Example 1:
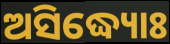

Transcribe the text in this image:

ଅସିଦ୍ଧ୍ୟୋଃ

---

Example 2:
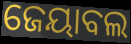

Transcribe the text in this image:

ଜେୟାବଲ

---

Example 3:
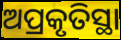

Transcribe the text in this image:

ଅପ୍ରକୃତିସ୍ଥା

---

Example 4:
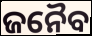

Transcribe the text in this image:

ଜନୈବ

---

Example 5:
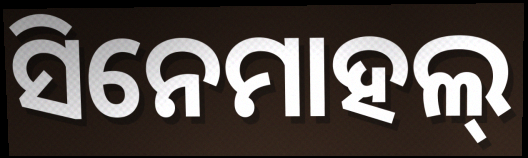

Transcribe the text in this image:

ସିନେମାହଲ୍